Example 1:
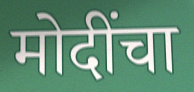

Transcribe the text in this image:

मोदींचा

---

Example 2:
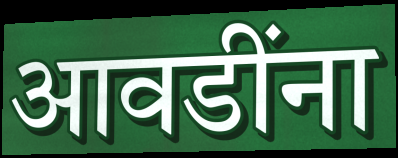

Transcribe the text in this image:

आवडींना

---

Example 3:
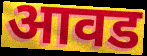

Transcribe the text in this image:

आवड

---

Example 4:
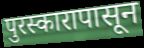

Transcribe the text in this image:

पुरस्कारापासून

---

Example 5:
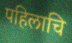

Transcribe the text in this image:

पहिलाचि